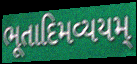
ભૂતાદિમવ્યયમ્